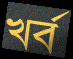
খৰ্ব